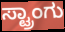
ಸ್ಟ್ರಾಂಗು